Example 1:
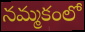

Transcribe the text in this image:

నమ్మకంలో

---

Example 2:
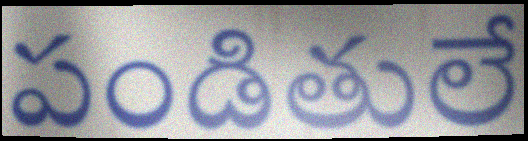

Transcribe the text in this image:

పండితులే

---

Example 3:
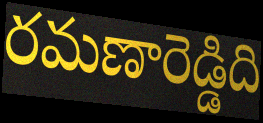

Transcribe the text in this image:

రమణారెడ్డిది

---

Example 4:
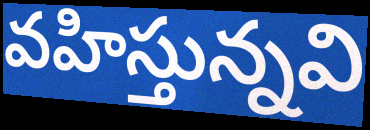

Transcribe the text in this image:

వహిస్తున్నవి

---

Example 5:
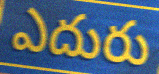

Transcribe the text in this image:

ఎదురు